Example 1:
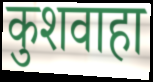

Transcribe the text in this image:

कुशवाहा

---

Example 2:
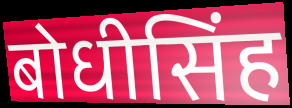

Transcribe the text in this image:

बोधीसिंह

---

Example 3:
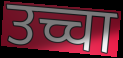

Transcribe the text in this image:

उच्चा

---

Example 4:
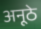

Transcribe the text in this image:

अनूठे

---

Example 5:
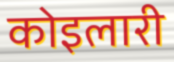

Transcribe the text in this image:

कोइलारी